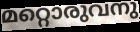
മറ്റൊരുവനു